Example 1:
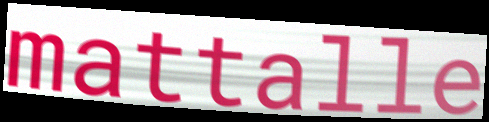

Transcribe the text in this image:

mattalle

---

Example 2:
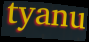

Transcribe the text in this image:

tyanu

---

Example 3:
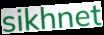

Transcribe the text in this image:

sikhnet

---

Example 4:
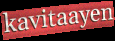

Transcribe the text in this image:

kavitaayen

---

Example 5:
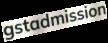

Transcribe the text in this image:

gstadmission